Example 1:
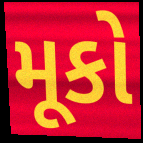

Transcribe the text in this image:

મૂકો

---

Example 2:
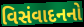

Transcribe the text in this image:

વિસંવાદનનો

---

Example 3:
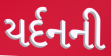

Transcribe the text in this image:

યર્દનની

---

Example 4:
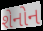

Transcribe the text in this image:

શેનોન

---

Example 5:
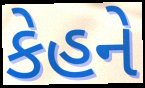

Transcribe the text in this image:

કેહને